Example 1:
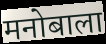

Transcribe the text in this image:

मनोबाला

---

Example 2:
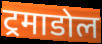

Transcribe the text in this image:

ट्रमाडोल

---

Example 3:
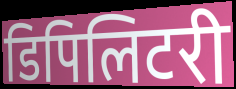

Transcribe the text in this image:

डिपिलिटरी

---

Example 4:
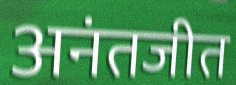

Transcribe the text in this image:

अनंतजीत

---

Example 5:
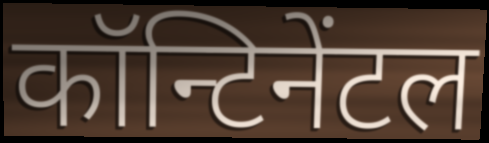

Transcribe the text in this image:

कॉन्टिनेंटल